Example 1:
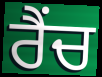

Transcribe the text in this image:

ਰੈਂਚ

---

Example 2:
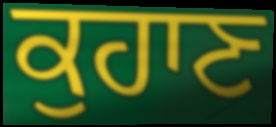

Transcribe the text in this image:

ਕੁਹਾਣ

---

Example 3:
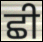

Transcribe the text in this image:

ਛੀ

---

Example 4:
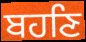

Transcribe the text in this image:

ਬਹਣਿ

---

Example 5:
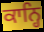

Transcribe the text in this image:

ਕਾਨ੍ਹਿ